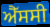
ਐੱਸਸੀ